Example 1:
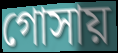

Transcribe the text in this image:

গোসায়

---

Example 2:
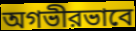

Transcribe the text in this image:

অগভীরভাবে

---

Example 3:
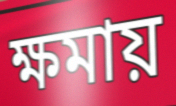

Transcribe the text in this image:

ক্ষমায়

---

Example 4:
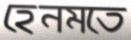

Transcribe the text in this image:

হেনমতে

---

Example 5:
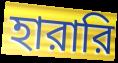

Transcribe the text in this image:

হারারি